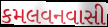
કમલવનવાસી